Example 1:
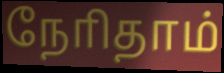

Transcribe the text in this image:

நேரிதாம்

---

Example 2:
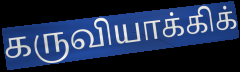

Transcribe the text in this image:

கருவியாக்கிக்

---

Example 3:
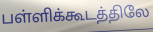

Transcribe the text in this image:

பள்ளிக்கூடத்திலே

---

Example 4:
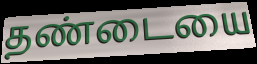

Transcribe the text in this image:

தண்டையை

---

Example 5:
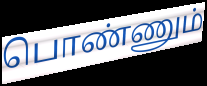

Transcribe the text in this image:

பொண்ணும்